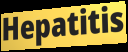
Hepatitis